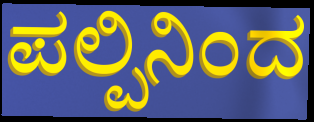
ಪಲ್ಪಿನಿಂದ